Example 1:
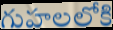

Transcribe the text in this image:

గుహలలోకి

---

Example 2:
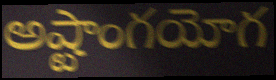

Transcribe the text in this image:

అష్టాంగయోగ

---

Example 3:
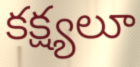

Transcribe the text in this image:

కక్ష్యలూ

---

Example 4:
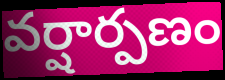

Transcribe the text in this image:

వర్షార్పణం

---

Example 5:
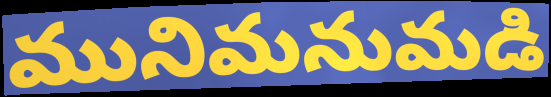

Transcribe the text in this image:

మునిమనుమడి